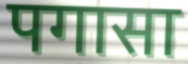
पगासा